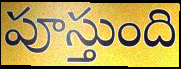
పూస్తుంది